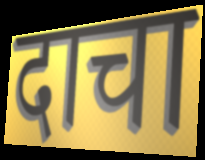
दाचा